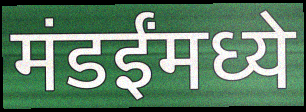
मंडईंमध्ये